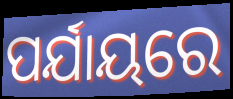
ପର୍ଯାୟରେ